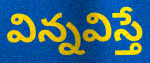
విన్నవిస్తే